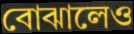
বোঝালেও